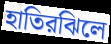
হাতিরঝিলে